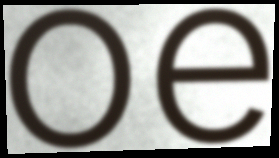
oe